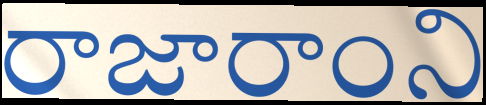
రాజారాంని